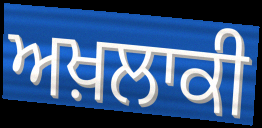
ਅਖ਼ਲਾਕੀ